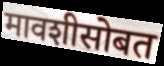
मावशीसोबत